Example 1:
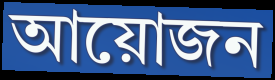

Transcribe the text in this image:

আয়োজন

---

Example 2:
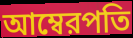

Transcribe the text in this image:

আম্বেরপতি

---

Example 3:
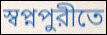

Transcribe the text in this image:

স্বপ্নপুরীতে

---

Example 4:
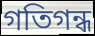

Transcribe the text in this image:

গতিগন্ধ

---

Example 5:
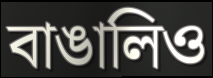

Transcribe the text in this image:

বাঙালিও